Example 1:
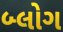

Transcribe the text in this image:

બ્લોગ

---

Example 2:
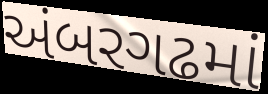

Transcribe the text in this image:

અંબરગઢમાં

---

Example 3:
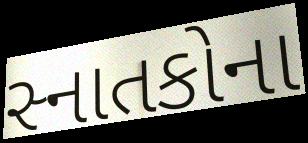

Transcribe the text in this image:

સ્નાતકોના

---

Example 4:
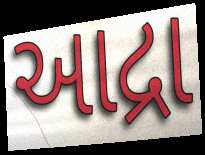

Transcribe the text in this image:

આદ્રા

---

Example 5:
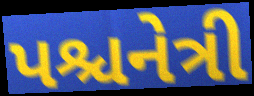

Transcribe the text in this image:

પશ્ચનેત્રી